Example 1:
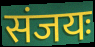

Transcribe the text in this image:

संजयः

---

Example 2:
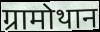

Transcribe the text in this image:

ग्रामोथान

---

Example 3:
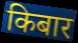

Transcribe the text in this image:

किबार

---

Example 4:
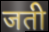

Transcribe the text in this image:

जती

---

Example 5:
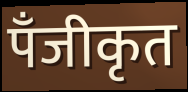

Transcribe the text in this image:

पँजीकृत